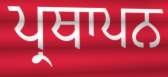
ਪ੍ਰਥਾਪਨ